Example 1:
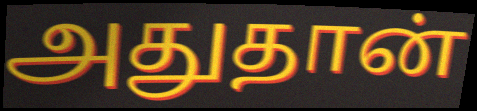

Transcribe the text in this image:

அதுதான்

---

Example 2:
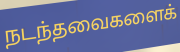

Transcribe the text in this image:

நடந்தவைகளைக்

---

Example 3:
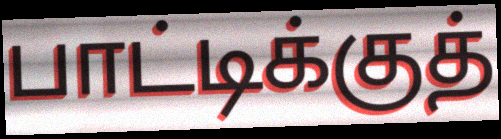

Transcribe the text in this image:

பாட்டிக்குத்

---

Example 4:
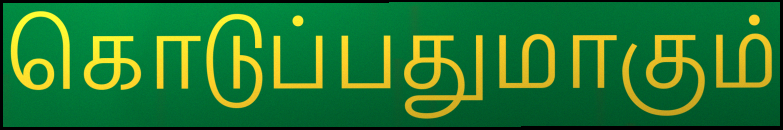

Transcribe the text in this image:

கொடுப்பதுமாகும்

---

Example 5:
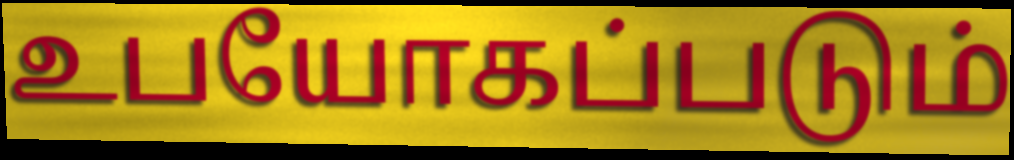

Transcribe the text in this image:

உபயோகப்படும்